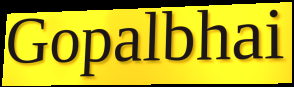
Gopalbhai